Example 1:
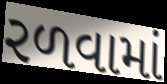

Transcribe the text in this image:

રળવામાં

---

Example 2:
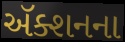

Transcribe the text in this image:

ઍક્શનના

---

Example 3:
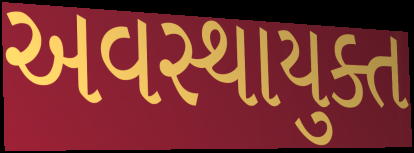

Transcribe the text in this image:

અવસ્થાયુક્ત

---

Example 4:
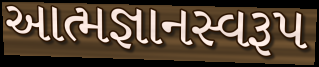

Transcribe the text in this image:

આત્મજ્ઞાનસ્વરૂપ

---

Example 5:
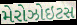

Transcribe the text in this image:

મેરોઝોઇટસ